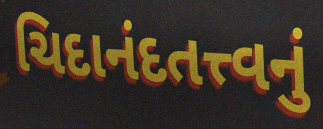
ચિદાનંદતત્ત્વનું